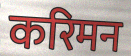
करिमन